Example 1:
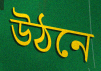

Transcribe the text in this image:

উঠনে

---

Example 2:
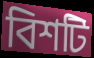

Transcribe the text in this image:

বিশটি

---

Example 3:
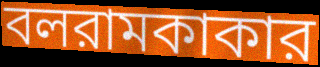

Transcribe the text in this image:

বলরামকাকার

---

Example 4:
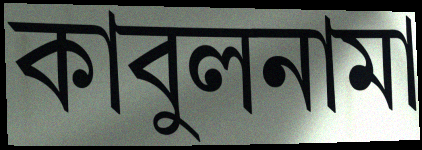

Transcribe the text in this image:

কাবুলনামা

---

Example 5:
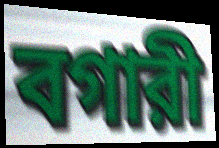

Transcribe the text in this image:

বগারী